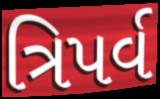
ત્રિપર્વ